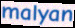
malyan